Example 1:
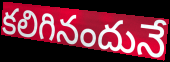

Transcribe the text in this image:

కలిగినందునే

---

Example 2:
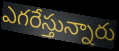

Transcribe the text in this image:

ఎగరేస్తున్నారు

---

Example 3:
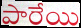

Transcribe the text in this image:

పారేయి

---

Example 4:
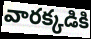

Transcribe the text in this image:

వారక్కడికి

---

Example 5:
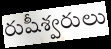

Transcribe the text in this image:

రుషీశ్వరులు